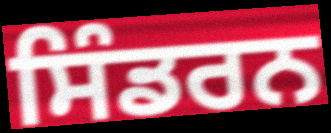
ਸਿੰਡਰਨ